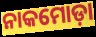
ନାକମୋଡ଼ା